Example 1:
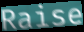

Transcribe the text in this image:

Raise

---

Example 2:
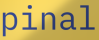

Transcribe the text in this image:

pinal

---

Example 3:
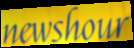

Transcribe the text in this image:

newshour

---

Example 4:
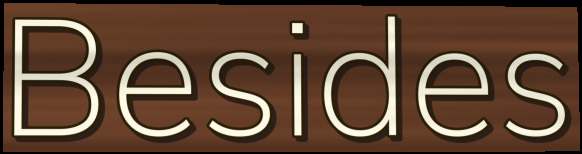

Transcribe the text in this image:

Besides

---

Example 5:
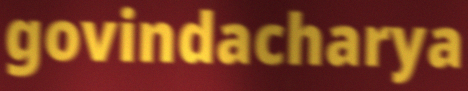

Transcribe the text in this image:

govindacharya